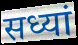
सध्यां